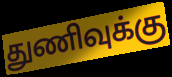
துணிவுக்கு